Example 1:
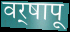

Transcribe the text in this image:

वर्षापू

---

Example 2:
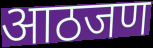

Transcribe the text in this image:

आठजण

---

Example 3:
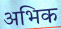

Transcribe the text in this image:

अभिक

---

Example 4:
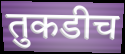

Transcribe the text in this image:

तुकडीच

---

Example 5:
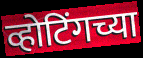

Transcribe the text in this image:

व्होटिंगच्या